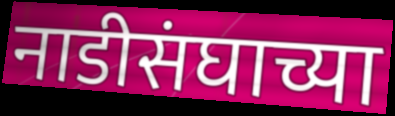
नाडीसंघाच्या